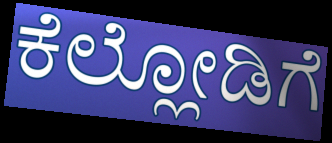
ಕೆಲ್ಲೋಡಿಗೆ